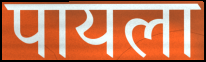
पायला